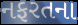
નફરતના